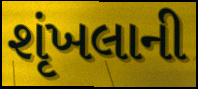
શૃંખલાની